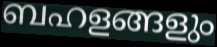
ബഹളങ്ങളും